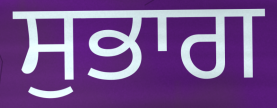
ਸੁਭਾਗ